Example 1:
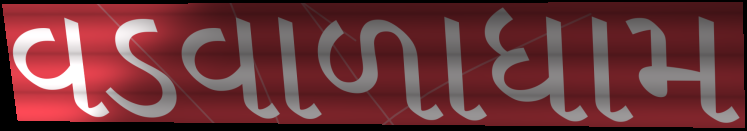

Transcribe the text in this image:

વડવાળાધામ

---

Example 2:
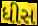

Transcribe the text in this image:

ધીસ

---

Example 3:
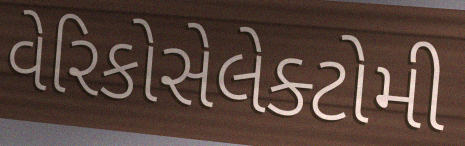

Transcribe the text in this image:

વેરિકોસેલેક્ટોમી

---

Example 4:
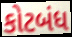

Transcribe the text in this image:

કોટબંધ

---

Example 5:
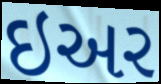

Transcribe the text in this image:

ઇઅર